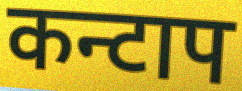
कन्टाप